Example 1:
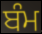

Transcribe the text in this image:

ਬੰਮ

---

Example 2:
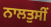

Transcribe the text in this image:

ਨਾਲਤੁਸੀਂ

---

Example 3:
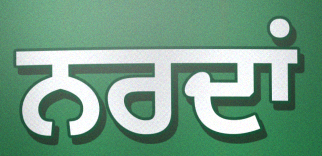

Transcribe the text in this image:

ਨਰਦਾਂ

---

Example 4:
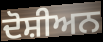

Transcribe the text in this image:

ਦੋਸ਼ੀਅਨ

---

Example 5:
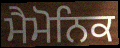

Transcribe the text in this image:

ਮੈਮੋਨਿਕ